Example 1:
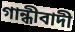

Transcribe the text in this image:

গান্ধীবাদী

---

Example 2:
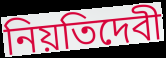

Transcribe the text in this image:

নিয়তিদেবী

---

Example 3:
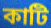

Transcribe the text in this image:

কাটি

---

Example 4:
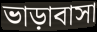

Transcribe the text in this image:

ভাড়াবাসা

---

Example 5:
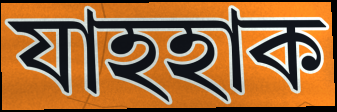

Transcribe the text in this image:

যাহহাক